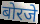
बोरजे